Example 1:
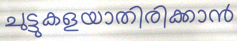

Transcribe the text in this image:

ചുട്ടുകളയാതിരിക്കാൻ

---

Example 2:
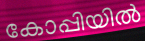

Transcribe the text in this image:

കോപ്പിയിൽ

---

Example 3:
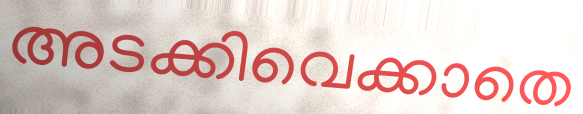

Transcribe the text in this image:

അടക്കിവെക്കാതെ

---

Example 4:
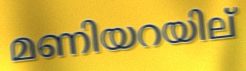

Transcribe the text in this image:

മണിയറയില്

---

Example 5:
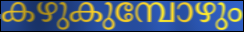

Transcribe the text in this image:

കഴുകുമ്പോഴും